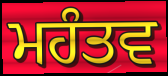
ਮਹੰਤਵ